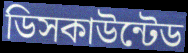
ডিসকাউন্টেড